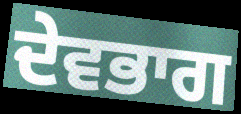
ਦੇਵਭਾਗ